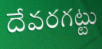
దేవరగట్టు